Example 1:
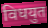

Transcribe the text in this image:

विधयुत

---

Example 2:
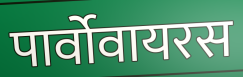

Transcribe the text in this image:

पार्वोवायरस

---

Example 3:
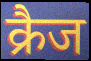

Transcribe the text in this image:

क्रैज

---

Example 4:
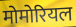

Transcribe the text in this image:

मोमोरियल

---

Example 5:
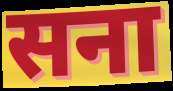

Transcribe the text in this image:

सना